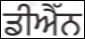
ਡੀਐੱਨ